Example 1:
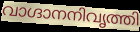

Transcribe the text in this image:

വാഗ്ദാനനിവൃത്തി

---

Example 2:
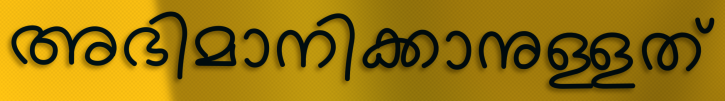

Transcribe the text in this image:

അഭിമാനിക്കാനുള്ളത്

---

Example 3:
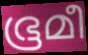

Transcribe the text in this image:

ഭൂമീ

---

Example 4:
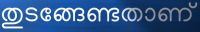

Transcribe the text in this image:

തുടങ്ങേണ്ടതാണ്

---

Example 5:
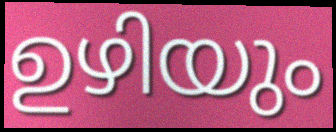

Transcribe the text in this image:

ഉഴിയും